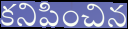
కనిపించిన